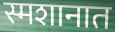
स्मशानात